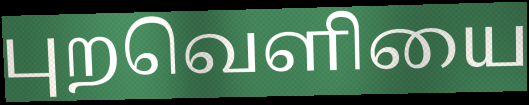
புறவெளியை